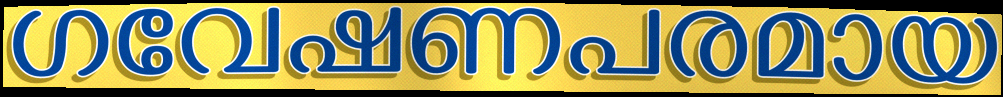
ഗവേഷണപരമായ